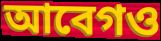
আবেগও